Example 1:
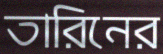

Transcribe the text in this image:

তারিনের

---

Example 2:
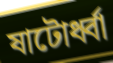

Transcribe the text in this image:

ষাটোর্ধ্বা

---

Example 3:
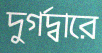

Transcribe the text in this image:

দুর্গদ্বারে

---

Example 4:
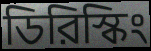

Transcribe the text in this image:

ডিরিস্কিং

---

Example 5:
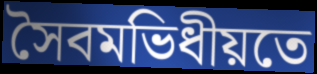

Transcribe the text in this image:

সৈবমভিধীয়তে